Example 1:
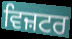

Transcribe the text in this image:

ਵਿਜ਼ਟਰ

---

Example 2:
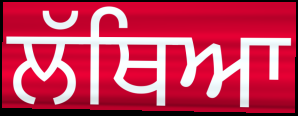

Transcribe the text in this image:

ਲੱਥਿਆ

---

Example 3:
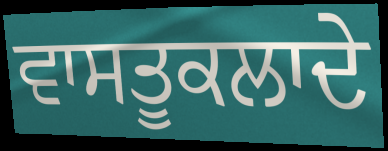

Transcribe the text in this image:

ਵਾਸਤੂਕਲਾਦੇ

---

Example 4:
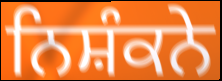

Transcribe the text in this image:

ਨਿਸ਼ੰਕਨੇ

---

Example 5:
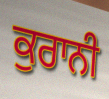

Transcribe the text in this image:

ਕੁਰਾਨੀ